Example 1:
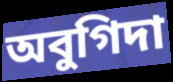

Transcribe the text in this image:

অবুগিদা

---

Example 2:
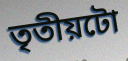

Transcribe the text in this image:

তৃতীয়টো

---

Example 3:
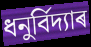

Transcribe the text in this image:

ধনুৰ্বিদ্যাৰ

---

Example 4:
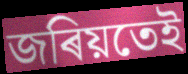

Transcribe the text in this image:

জৰিয়তেই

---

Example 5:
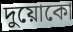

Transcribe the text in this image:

দুয়োকো